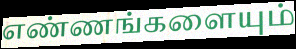
எண்ணங்களையும்